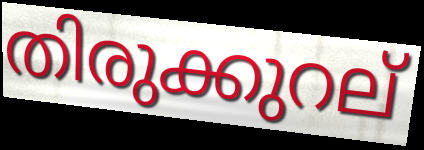
തിരുക്കുറല്